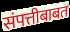
संपत्तीबाबत